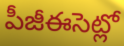
పీజీఈసెట్లో